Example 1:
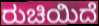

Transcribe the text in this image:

ರುಚಿಯಿದೆ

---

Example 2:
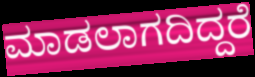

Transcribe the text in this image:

ಮಾಡಲಾಗದಿದ್ದರೆ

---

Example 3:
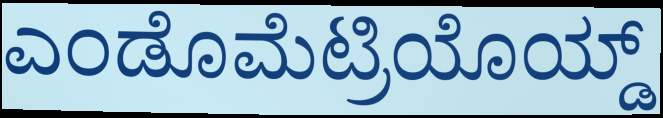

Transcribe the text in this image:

ಎಂಡೊಮೆಟ್ರಿಯೊಯ್ಡ್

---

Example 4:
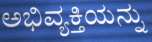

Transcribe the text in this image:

ಅಭಿವ್ಯಕ್ತಿಯನ್ನು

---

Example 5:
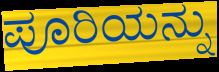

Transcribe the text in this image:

ಪೂರಿಯನ್ನು